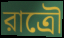
রাত্রৌ